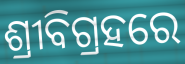
ଶ୍ରୀବିଗ୍ରହରେ